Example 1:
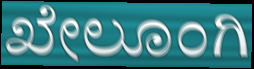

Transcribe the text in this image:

ಖೇಲೂಂಗಿ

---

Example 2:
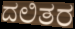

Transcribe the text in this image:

ದಲಿತರ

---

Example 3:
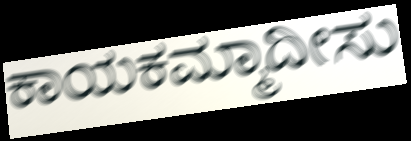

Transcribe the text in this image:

ಕಾಯಕಮ್ಮಾದೀಸು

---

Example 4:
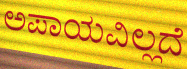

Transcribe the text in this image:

ಅಪಾಯವಿಲ್ಲದೆ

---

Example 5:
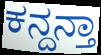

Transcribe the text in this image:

ಕನ್ದನ್ತಾ